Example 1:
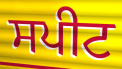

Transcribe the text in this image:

ਸਪੀਟ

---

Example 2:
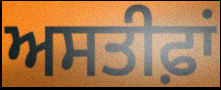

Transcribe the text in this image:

ਅਸਤੀਫ਼ਾਂ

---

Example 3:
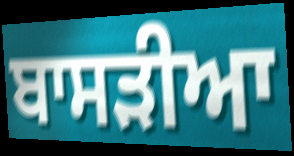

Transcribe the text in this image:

ਬਾਸੜੀਆ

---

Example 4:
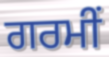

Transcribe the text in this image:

ਗਰਮੀਂ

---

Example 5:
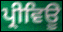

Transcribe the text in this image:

ਪ੍ਰੀਵਿਊ